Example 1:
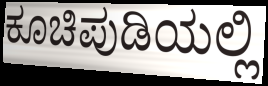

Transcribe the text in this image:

ಕೂಚಿಪುಡಿಯಲ್ಲಿ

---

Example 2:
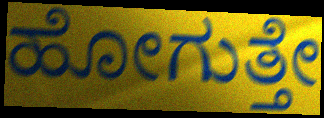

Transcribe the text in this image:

ಹೋಗುತ್ತೇ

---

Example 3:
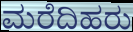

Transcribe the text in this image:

ಮರೆದಿಹರು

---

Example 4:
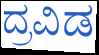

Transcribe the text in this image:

ದ್ರವಿಡ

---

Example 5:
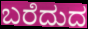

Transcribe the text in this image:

ಬರೆದುದ